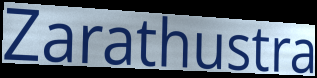
Zarathustra